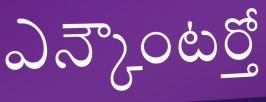
ఎన్కౌంటర్తో